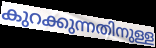
കുറക്കുന്നതിനുള്ള